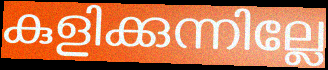
കുളിക്കുന്നില്ലേ